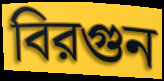
বিরগুন